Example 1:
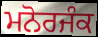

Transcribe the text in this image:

ਮਨੋਰਜੰਕ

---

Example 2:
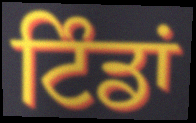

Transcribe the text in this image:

ਟਿੰਡਾਂ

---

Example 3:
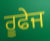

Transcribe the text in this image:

ਰੂਫੇਜ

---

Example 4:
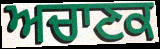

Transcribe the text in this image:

ਅਚਾਣਕ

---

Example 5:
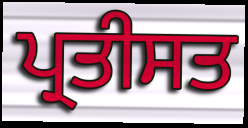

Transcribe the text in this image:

ਪ੍ਰਤੀਸਤ